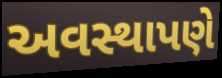
અવસ્થાપણે